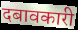
दबावकारी